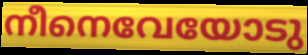
നീനെവേയോടു